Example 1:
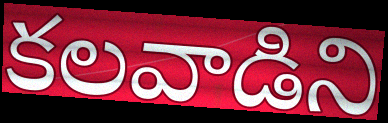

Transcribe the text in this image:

కలవాడిని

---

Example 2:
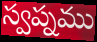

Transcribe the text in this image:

స్వప్నము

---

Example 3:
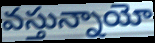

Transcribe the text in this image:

వస్తున్నాయో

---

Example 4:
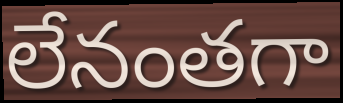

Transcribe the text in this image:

లేనంతగా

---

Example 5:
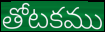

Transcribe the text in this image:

తోటకము